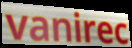
vanirec